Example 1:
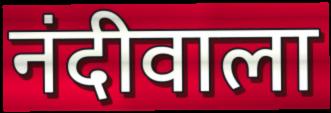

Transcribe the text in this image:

नंदीवाला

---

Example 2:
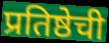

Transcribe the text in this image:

प्रतिष्ठेची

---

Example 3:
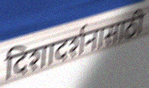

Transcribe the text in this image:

दिशादर्शनासाठी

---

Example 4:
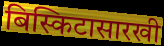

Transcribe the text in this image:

बिस्किटासारखी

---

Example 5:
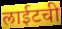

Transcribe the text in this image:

लाईटची